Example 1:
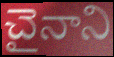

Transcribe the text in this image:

చైనాని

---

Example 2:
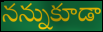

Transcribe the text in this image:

నన్నుకూడా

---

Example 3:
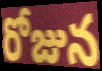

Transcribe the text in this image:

రోజున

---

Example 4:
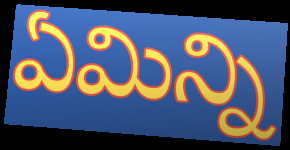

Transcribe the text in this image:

ఏమిన్ని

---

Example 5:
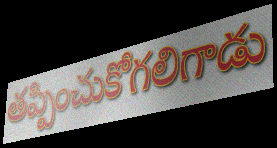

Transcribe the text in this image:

తప్పించుకోగలిగాడు